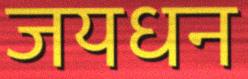
जयधन